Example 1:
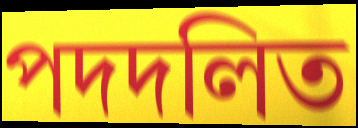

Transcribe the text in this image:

পদদলিত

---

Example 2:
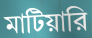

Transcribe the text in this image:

মাটিয়ারি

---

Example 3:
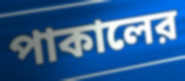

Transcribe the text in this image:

পাকালের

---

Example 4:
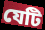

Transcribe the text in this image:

যেটি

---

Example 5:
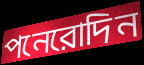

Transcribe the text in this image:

পনেরোদিন